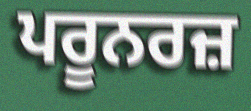
ਪਰੂਨਰਜ਼